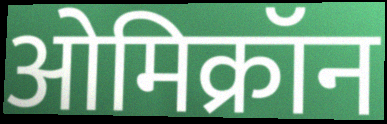
ओमिक्रॉन